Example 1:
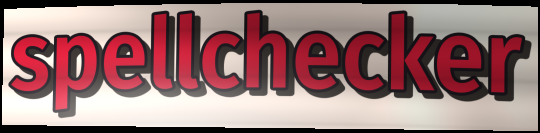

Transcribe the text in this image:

spellchecker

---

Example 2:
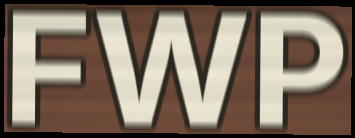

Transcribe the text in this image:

FWP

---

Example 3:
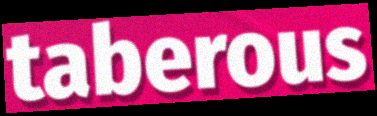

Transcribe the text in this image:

taberous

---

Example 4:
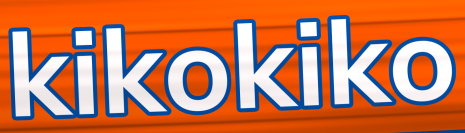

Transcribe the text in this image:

kikokiko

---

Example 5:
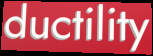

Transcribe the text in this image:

ductility